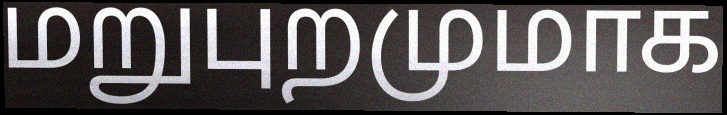
மறுபுறமுமாக